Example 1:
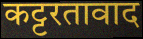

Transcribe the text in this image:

कट्टरतावाद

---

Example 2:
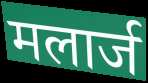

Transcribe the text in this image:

मलार्ज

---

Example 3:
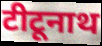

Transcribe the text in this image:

टीटूनाथ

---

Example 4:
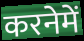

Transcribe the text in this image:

करनेमें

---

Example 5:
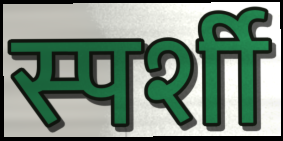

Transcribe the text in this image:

स्पर्शी